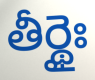
తీర్థైః